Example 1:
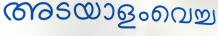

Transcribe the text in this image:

അടയാളംവെച്ച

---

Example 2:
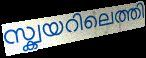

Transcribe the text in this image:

സ്ക്വയറിലെത്തി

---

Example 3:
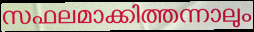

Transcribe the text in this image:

സഫലമാക്കിത്തന്നാലും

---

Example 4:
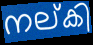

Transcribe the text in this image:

നല്കി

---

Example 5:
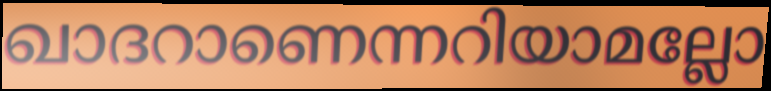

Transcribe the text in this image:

ഖാദറാണെന്നറിയാമല്ലോ